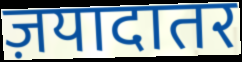
ज़यादातर